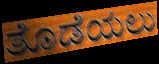
ತೊಡೆಯಲು